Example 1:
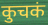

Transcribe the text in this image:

कुचकं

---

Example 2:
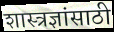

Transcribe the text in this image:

शास्त्रज्ञांसाठी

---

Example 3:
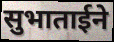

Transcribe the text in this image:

सुभाताईने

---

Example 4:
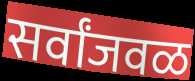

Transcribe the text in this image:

सर्वांजवळ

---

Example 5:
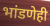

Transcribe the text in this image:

भांडणेही